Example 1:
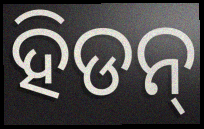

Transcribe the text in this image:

ହିଡନ୍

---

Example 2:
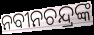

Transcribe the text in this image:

ନବୀନଚନ୍ଦ୍ରଙ୍କ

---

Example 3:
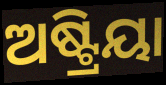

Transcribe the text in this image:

ଅଷ୍ଟ୍ରିୟା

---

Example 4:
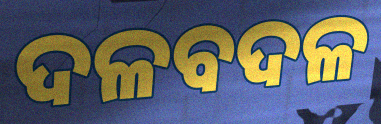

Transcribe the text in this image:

ଦଳବଦଳ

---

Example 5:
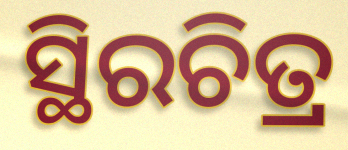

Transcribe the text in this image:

ସ୍ଥିରଚିତ୍ର